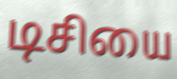
டிசியை